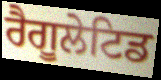
ਰੈਗੂਲੇਟਿਡ